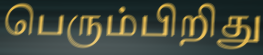
பெரும்பிறிது